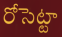
రోసెట్టా